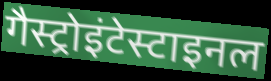
गैस्ट्रोइंटेस्टाइनल